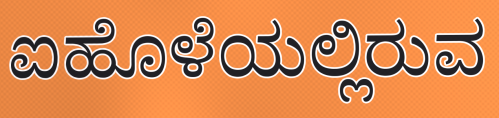
ಐಹೊಳೆಯಲ್ಲಿರುವ